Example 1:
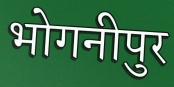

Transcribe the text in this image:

भोगनीपुर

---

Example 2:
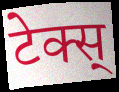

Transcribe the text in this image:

टेक्स्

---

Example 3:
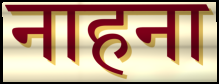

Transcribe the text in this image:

नाहना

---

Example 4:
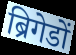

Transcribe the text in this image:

ब्रिगेडों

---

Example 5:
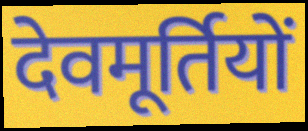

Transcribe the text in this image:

देवमूर्तियों